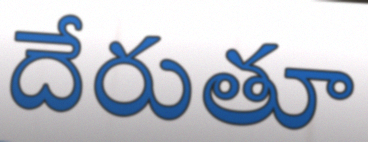
దేరుతూ